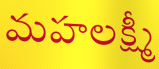
మహలక్ష్మీ